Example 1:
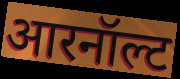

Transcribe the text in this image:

आरनॉल्ट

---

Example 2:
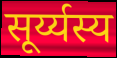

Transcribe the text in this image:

सूर्य्यस्य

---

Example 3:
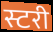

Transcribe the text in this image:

स्टरी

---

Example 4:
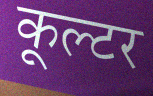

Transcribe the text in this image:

कूल्टर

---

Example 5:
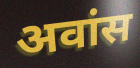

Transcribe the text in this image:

अवांस